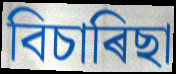
বিচাৰিছা